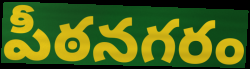
పీఠనగరం